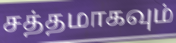
சத்தமாகவும்